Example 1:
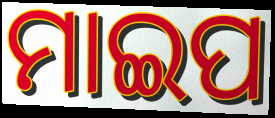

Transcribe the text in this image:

ମାଇପ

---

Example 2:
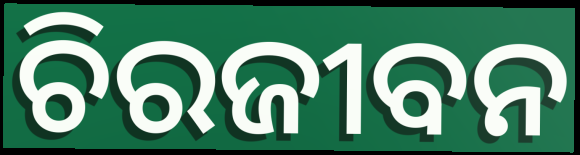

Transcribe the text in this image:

ଚିରଜୀବନ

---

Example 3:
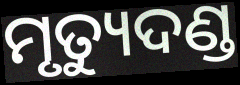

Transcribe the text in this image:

ମୃତ୍ୟୁଦଣ୍ଡ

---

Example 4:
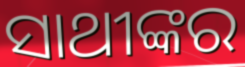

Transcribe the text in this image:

ସାଥୀଙ୍କର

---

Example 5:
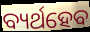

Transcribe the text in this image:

ବ୍ୟର୍ଥହେବ